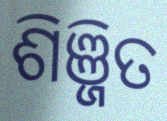
ଶିଞ୍ଜିତ